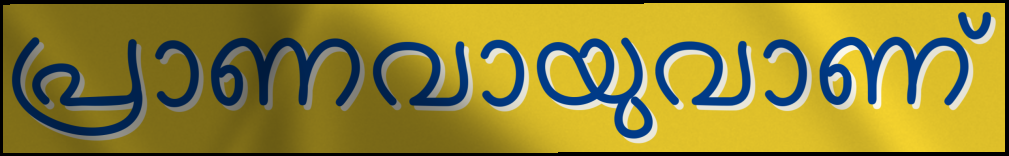
പ്രാണവായുവാണ്